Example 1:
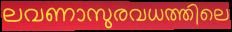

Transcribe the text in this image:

ലവണാസുരവധത്തിലെ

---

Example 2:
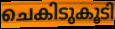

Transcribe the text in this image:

ചെകിടുകൂടി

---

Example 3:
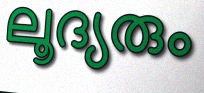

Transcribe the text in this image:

ലൂദ്യരും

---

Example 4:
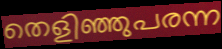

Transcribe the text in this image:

തെളിഞ്ഞുപരന്ന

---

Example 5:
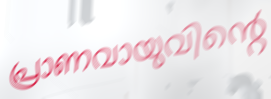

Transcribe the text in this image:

പ്രാണവായുവിന്റെ